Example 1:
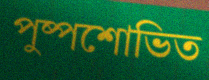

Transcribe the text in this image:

পুষ্পশোভিত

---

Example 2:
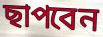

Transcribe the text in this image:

ছাপবেন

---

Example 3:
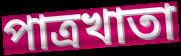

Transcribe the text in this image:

পাত্রখাতা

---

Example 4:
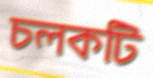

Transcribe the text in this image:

চলকটি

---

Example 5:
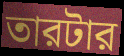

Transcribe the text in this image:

তারটার